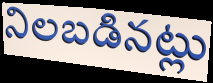
నిలబడినట్లు